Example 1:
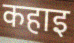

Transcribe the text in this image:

कहाइ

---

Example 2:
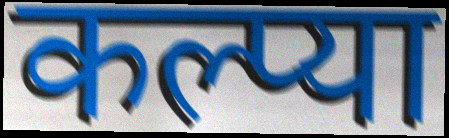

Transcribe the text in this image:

कल्प्या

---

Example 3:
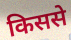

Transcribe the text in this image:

किससे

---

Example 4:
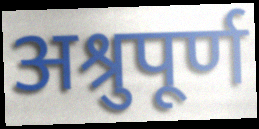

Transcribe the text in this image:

अश्रुपूर्ण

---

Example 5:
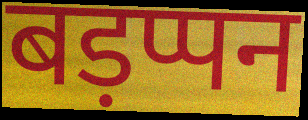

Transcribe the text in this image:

बड़प्पन